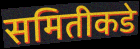
समितीकडे